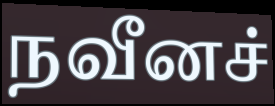
நவீனச்